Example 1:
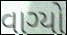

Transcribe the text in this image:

વાગ્યો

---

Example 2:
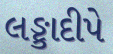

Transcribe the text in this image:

લઙ્કાદીપે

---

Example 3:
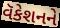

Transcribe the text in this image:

વૅકેશનને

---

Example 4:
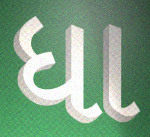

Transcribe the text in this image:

ધા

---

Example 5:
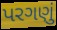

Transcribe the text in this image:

પરગણું